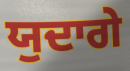
ਯੁਦਾਗੇ